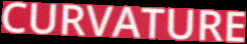
CURVATURE